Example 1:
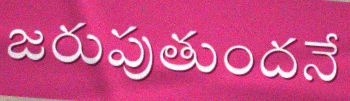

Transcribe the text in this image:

జరుపుతుందనే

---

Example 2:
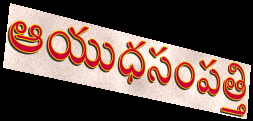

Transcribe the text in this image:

ఆయుధసంపత్తి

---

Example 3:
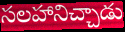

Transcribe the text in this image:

సలహానిచ్చాడు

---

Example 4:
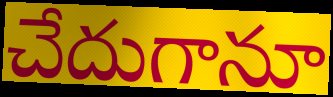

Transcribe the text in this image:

చేదుగానూ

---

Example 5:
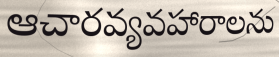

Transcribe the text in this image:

ఆచారవ్యవహారాలను